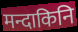
मन्दाकिनि